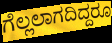
ಗೆಲ್ಲಲಾಗದಿದ್ದರೂ